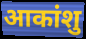
आकांशु